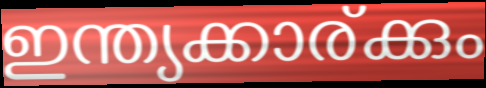
ഇന്ത്യക്കാര്ക്കും